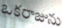
ఒకరాజును